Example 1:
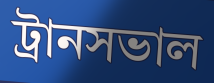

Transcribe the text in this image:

ট্রানসভাল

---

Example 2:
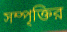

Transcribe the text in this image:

সম্পৃক্তির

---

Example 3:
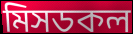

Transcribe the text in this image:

মিসডকল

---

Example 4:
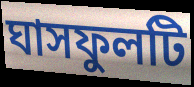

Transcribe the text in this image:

ঘাসফুলটি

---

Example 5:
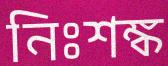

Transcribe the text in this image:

নিঃশঙ্ক